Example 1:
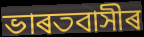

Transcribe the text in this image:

ভাৰতবাসীৰ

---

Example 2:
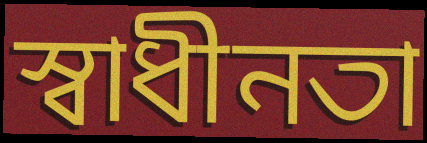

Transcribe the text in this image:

স্বাধীনতা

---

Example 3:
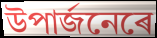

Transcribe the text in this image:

উপাৰ্জনেৰে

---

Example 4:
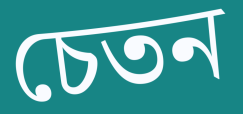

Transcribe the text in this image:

চেতন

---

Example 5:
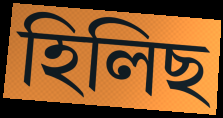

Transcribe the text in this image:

হিলিছ